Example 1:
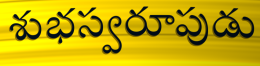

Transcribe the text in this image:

శుభస్వరూపుడు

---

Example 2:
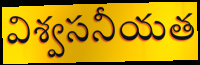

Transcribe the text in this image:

విశ్వసనీయత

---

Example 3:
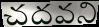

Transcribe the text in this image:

చదవని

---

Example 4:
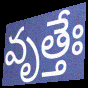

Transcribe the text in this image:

వృత్తేః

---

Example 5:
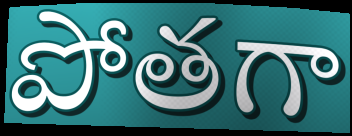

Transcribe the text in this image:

పోతగా